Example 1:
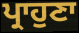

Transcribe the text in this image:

ਪ੍ਰਾਹੁਣਾ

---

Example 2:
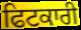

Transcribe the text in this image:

ਫਿਟਕਾਰੀ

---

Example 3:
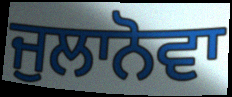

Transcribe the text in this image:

ਜੁਲਾਨੋਵਾ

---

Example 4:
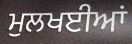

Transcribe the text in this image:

ਮੁਲਖਈਆਂ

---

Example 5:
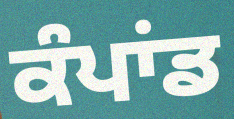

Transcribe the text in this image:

ਕੰਪਾਂਡ